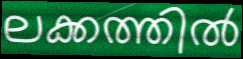
ലക്കത്തിൽ